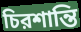
চিরশান্তি